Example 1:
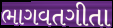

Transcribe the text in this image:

ભાગવતગીતા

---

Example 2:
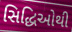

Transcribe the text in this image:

સિદ્ધિઓથી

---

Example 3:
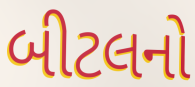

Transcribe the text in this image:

બીટલનો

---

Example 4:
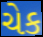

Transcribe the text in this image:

ચેક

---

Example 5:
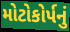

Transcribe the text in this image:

મોટોકોર્પનું